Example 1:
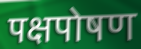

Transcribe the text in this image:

पक्षपोषण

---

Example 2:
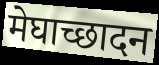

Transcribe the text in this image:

मेघाच्छादन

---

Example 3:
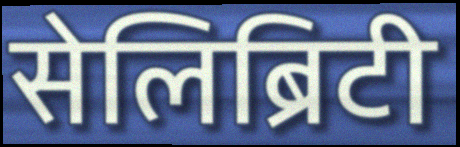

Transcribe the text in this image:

सेलिब्रिटी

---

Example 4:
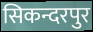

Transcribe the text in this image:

सिकन्दरपुर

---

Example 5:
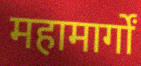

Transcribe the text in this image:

महामार्गों